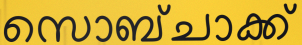
സൊബ്ചാക്ക്